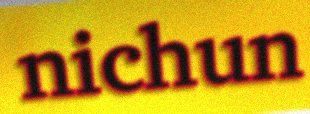
nichun